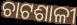
ଚାଟଶାଳୀ